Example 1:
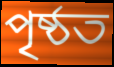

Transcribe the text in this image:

পৃষ্ঠত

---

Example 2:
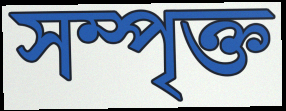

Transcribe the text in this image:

সম্পৃক্ত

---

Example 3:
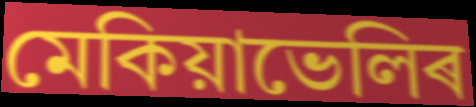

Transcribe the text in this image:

মেকিয়াভেলিৰ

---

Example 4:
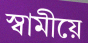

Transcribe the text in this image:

স্বামীয়ে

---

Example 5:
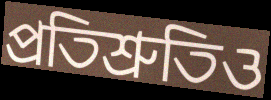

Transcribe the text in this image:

প্ৰতিশ্ৰুতিও